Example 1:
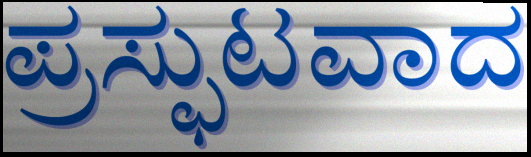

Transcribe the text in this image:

ಪ್ರಸ್ಫುಟವಾದ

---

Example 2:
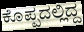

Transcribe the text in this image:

ಕೊಪ್ಪದಲ್ಲಿದ್ದ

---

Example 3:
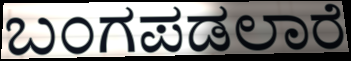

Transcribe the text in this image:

ಬಂಗಪಡಲಾರೆ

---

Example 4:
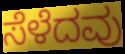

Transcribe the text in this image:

ಸೆಳೆದವು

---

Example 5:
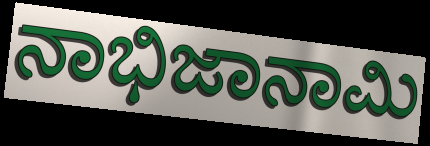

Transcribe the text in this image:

ನಾಭಿಜಾನಾಮಿ